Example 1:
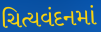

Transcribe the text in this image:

ચિત્યવંદનમાં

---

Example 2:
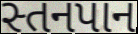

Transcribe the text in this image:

સ્તનપાન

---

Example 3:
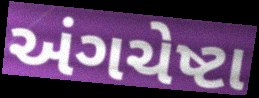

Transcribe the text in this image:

અંગચેષ્ટા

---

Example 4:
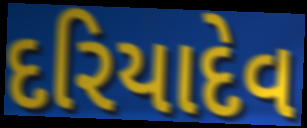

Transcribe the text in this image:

દરિયાદેવ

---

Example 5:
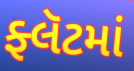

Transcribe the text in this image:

ફ્લૅટમાં